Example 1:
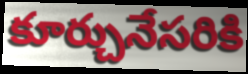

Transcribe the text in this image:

కూర్చునేసరికి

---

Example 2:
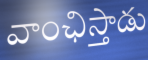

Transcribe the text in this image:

వాంఛిస్తాడు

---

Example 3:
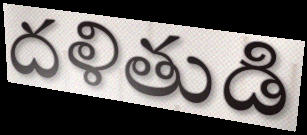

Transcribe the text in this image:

దళితుడి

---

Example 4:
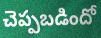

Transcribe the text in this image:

చెప్పబడిందో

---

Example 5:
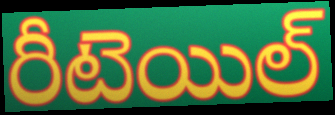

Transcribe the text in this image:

రీటెయిల్